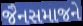
જૈનસમાજને